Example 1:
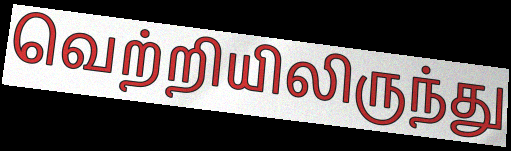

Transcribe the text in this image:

வெற்றியிலிருந்து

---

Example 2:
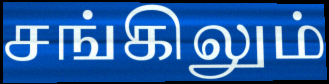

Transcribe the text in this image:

சங்கிலும்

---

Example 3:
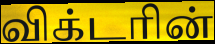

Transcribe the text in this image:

விக்டரின்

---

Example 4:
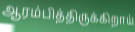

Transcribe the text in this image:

ஆரம்பித்திருக்கிறாய்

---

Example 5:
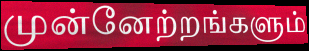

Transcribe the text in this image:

முன்னேற்றங்களும்